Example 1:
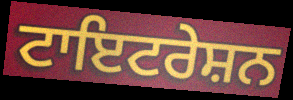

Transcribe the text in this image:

ਟਾਇਟਰੇਸ਼ਨ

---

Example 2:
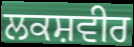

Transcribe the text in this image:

ਲਕਸ਼ਵੀਰ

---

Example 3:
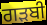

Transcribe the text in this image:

ਗੜਬੀ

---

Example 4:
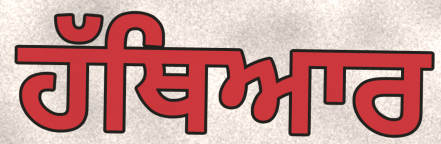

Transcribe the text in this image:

ਹੱਥਿਆਰ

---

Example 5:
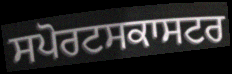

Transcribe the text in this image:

ਸਪੋਰਟਸਕਾਸਟਰ